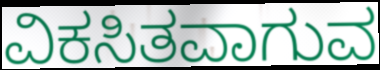
ವಿಕಸಿತವಾಗುವ